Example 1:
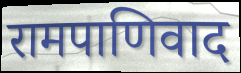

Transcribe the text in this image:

रामपाणिवाद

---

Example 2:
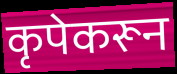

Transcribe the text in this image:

कृपेकरून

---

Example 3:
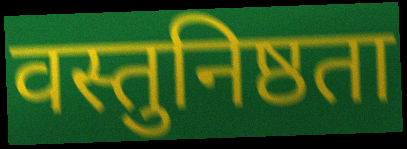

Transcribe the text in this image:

वस्तुनिष्ठता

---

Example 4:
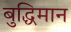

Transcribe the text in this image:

बुद्धिमान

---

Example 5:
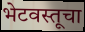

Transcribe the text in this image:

भेटवस्तूचा